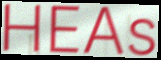
HEAs